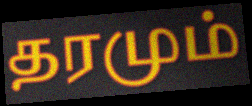
தரமும்